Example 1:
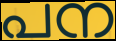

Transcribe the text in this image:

പന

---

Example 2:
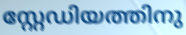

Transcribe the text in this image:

സ്റ്റേഡിയത്തിനു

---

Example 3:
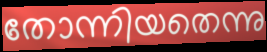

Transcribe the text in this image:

തോന്നിയതെന്നു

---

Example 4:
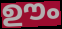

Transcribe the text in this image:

ഊം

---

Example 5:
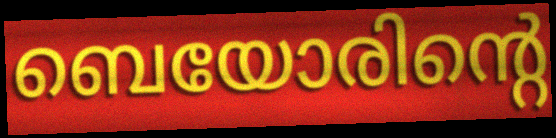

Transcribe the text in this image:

ബെയോരിന്റെ